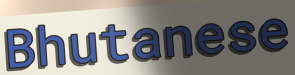
Bhutanese